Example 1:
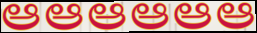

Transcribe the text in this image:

ఆఆఆఆఆఆ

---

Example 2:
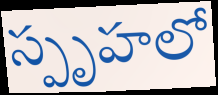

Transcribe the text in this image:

స్పృహలో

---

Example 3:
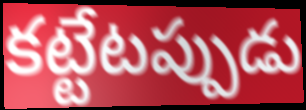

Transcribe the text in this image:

కట్టేటప్పుడు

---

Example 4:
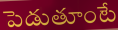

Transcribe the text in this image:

పెడుతూంటే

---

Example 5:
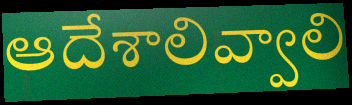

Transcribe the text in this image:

ఆదేశాలివ్వాలి